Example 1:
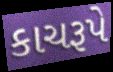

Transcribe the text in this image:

કાચરૂપે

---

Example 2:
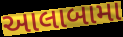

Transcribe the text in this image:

આલાબામા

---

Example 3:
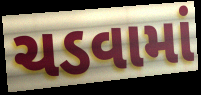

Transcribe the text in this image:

ચડવામાં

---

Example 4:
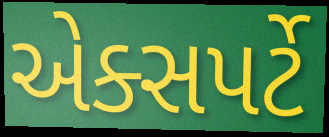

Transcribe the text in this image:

એક્સપર્ટે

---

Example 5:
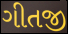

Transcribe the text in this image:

ગીતજી